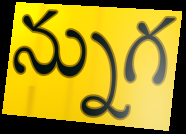
న్నుగ